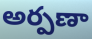
అర్పణా